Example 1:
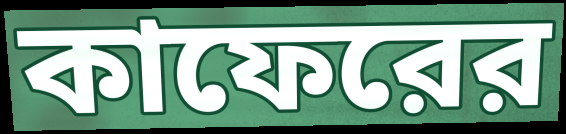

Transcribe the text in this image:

কাফেরের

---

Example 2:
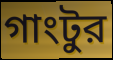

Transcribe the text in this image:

গাংটুর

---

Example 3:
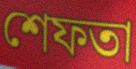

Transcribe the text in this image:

শেফতা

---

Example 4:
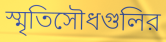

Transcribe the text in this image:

স্মৃতিসৌধগুলির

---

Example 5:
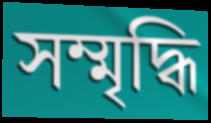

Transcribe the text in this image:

সম্মৃদ্ধি